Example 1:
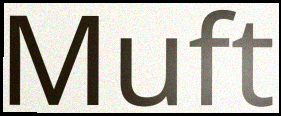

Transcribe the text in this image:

Muft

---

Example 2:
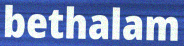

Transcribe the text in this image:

bethalam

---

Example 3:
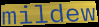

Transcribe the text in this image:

mildew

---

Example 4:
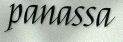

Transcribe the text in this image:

panassa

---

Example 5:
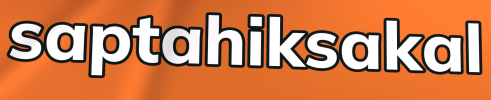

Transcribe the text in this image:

saptahiksakal